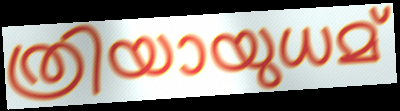
ത്രിയായുധമ്